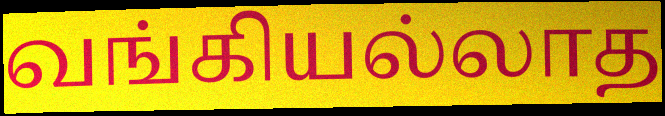
வங்கியல்லாத